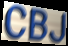
CBJ